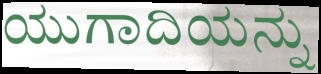
ಯುಗಾದಿಯನ್ನು